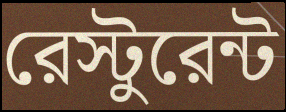
রেস্টুরেন্ট